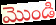
మొండి